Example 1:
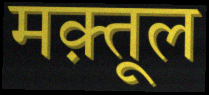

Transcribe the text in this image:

मक़्तूल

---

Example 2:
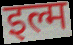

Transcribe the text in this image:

इल्म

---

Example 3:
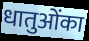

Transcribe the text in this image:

धातुओंका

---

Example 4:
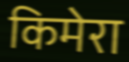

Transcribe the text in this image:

किमेरा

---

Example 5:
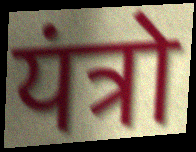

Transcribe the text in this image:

यंत्रो